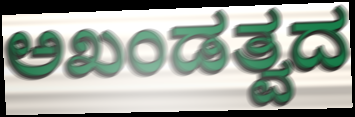
ಅಖಂಡತ್ವದ